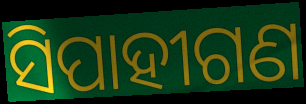
ସିପାହୀଗଣ